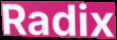
Radix